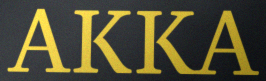
AKKA